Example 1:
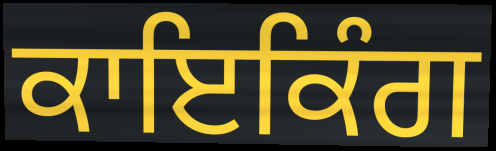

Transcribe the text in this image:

ਕਾਇਕਿੰਗ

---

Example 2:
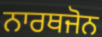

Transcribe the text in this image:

ਨਾਰਥਜੋਨ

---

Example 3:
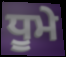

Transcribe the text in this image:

ਧੂਮੇ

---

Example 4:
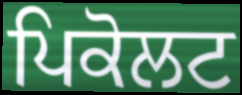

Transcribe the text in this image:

ਪਿਕੋਲਟ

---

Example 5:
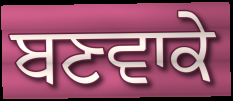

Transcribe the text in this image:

ਬਣਵਾਕੇ